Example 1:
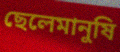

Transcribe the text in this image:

ছেলেমানুষি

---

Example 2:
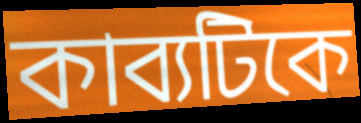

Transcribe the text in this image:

কাব্যটিকে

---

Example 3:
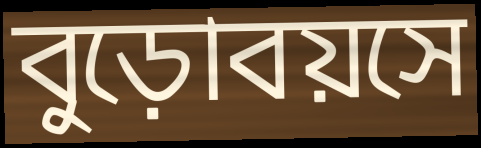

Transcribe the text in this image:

বুড়োবয়সে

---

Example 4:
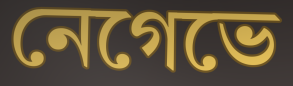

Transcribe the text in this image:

নেগেভে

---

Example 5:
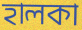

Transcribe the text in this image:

হালকা